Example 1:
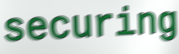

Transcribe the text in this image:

securing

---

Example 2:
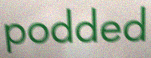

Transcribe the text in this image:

podded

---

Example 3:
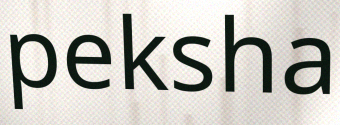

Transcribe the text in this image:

peksha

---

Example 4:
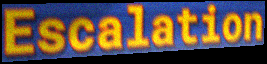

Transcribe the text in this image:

Escalation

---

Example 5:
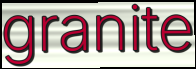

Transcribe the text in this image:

granite